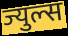
ज्युल्स